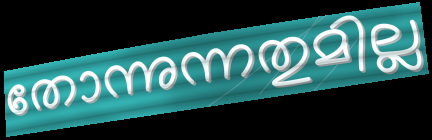
തോന്നുന്നതുമില്ല